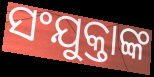
ସଂଯୁକ୍ତାଙ୍କ